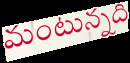
మంటున్నది